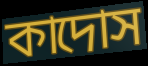
কাদোস